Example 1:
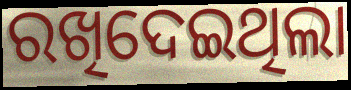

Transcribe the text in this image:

ରଖିଦେଇଥିଲା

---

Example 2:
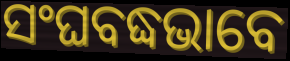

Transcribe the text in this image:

ସଂଘବଦ୍ଧଭାବେ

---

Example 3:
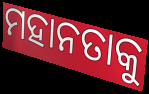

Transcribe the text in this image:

ମହାନତାକୁ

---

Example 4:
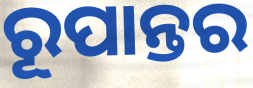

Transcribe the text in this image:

ରୂପାନ୍ତର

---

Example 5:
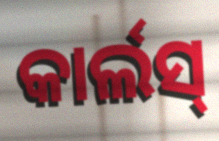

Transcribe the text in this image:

କାର୍ଲସ୍